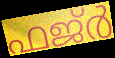
ഫജ്ർ